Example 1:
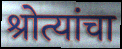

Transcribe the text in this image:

श्रोत्यांचा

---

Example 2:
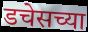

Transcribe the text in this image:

डचेसच्या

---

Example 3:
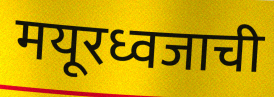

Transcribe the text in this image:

मयूरध्वजाची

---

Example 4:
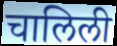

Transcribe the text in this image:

चालिली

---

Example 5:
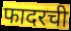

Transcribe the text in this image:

फादरची